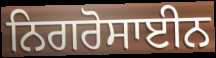
ਨਿਗਰੋਸਾਈਨ